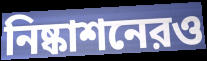
নিষ্কাশনেরও